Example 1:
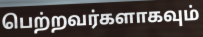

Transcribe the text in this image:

பெற்றவர்களாகவும்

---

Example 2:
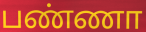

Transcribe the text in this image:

பண்ணா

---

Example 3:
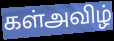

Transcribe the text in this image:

கள்அவிழ்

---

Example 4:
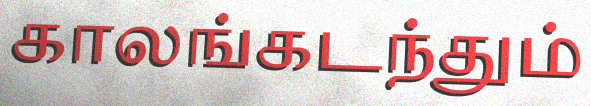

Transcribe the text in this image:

காலங்கடந்தும்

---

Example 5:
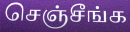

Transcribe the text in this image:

செஞ்சீங்க